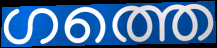
ഗത്തെ